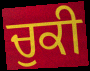
ਚੁਕੀ